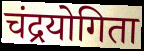
चंद्रयोगिता